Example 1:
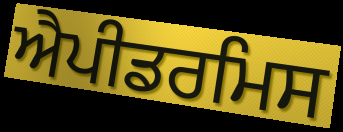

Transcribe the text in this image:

ਐਪੀਡਰਮਿਸ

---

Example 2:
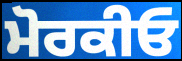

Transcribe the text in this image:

ਮੋਰਕੀਓ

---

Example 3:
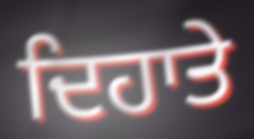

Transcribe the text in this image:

ਦਿਹਾਤੇ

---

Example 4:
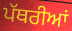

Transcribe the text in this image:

ਪੱਥਰੀਆਂ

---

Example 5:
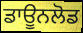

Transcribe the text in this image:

ਡਾਊਨਲੋਡ